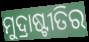
ମୁଦ୍ରାଷ୍ଟୀତିର